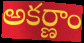
అకర్ణాం